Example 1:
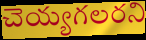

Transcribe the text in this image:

చెయ్యగలరని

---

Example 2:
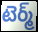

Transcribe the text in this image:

టెర్మ్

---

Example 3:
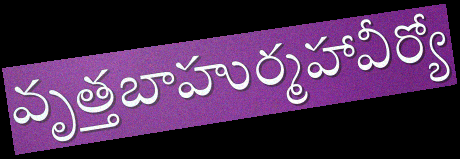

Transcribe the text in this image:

వృత్తబాహుర్మహావీర్యో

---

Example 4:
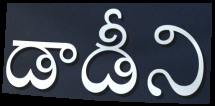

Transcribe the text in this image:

డాడీని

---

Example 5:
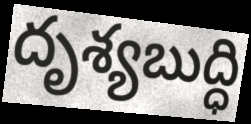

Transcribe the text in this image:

దృశ్యబుద్ధి